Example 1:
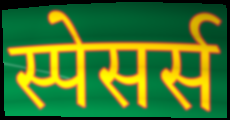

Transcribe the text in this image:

स्पेसर्स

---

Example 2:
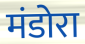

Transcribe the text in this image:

मंडोरा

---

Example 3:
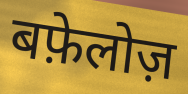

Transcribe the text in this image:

बफ़ेलोज़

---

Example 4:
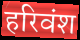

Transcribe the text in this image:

हरिवंश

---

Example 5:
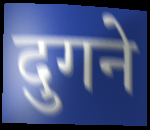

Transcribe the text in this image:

दुगने